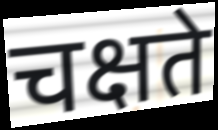
चक्षते